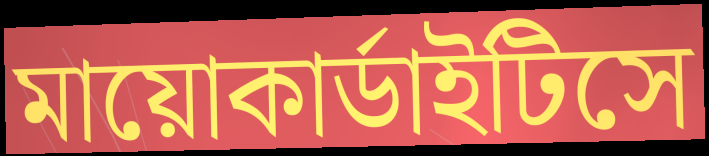
মায়োকার্ডাইটিসে